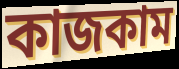
কাজকাম